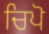
ਚਿਪੋ